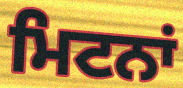
ਮਿਟਨਾਂ